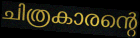
ചിത്രകാരന്റെ